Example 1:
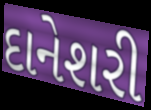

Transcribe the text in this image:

દાનેશરી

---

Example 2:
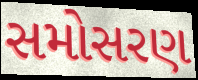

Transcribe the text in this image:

સમોસરણ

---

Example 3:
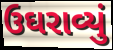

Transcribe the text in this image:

ઉઘરાવ્યું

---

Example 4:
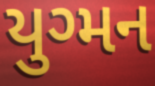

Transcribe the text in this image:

યુગ્મન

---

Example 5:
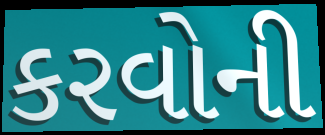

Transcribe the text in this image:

કરવોની